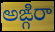
అఙ్గిరా